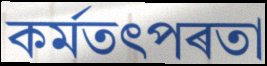
কৰ্মতৎপৰতা